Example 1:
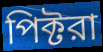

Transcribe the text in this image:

পিক্টরা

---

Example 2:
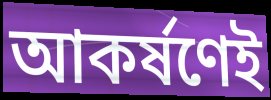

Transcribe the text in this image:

আকর্ষণেই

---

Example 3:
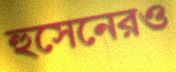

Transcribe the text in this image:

হুসেনেরও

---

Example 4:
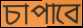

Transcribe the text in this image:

চাপাবে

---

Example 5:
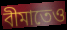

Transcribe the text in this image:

বীমাতেও